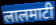
लालमाटी